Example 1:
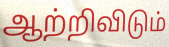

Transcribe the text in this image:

ஆற்றிவிடும்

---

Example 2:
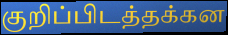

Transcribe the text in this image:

குறிப்பிடத்தக்கன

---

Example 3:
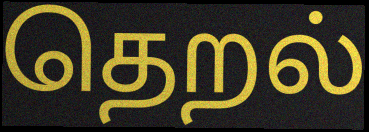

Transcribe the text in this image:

தெறல்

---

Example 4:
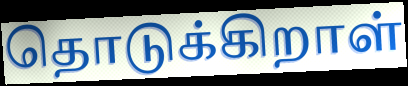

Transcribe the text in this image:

தொடுக்கிறாள்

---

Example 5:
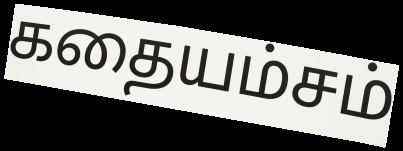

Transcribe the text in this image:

கதையம்சம்